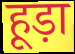
हूड़ा